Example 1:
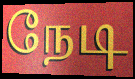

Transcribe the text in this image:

நேடி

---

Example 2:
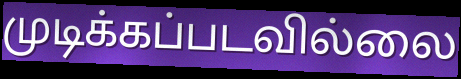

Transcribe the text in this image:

முடிக்கப்படவில்லை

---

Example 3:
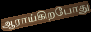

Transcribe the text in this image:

ஆராய்கிறபோது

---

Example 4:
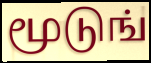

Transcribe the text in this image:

மூடுங்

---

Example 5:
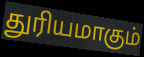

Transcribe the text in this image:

துரியமாகும்